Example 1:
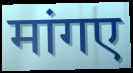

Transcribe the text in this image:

मांगए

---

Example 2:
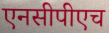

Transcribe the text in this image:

एनसीपीएच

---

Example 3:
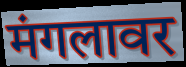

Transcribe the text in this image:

मंगलावर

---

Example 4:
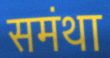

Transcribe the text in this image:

समंथा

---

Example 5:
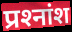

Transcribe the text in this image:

प्रश्‍नांश